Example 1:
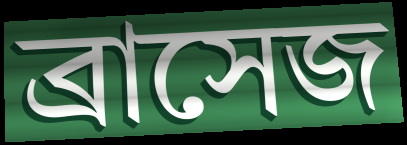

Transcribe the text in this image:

ব্রাসেজ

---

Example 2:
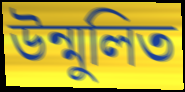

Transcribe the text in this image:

উন্মুলিত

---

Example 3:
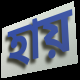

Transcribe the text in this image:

হায়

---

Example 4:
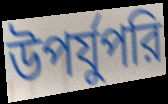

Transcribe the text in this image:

উপর্যুপরি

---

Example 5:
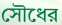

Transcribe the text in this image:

সৌধের